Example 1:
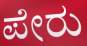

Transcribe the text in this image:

ಪೇರು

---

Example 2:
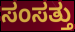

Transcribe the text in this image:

ಸಂಸತ್ತು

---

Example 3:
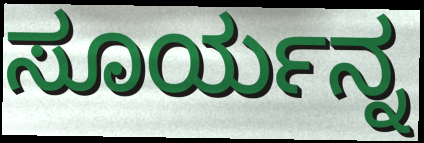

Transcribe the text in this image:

ಸೂರ್ಯನ್ನ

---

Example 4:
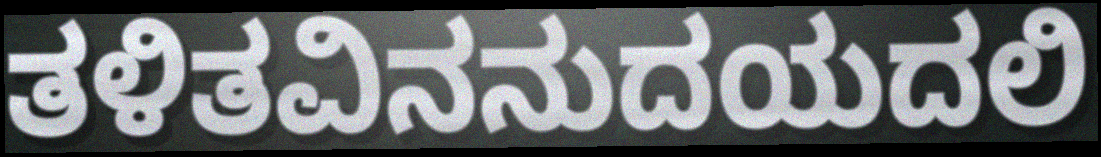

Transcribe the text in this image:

ತಳಿತವಿನನುದಯದಲಿ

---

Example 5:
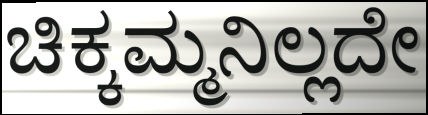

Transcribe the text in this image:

ಚಿಕ್ಕಮ್ಮನಿಲ್ಲದೇ